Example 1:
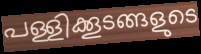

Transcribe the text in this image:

പള്ളിക്കൂടങ്ങളുടെ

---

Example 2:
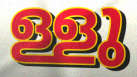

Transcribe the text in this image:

ള്ളു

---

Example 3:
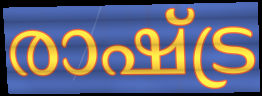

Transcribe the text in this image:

രാഷ്ട്ര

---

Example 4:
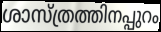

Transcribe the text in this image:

ശാസ്ത്രത്തിനപ്പുറം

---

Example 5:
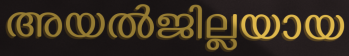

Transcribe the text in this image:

അയൽജില്ലയായ